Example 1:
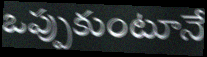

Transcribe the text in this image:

ఒప్పుకుంటూనే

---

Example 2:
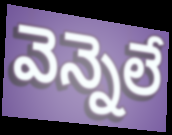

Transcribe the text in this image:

వెన్నెలే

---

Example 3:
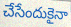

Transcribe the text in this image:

చేసేందుకైనా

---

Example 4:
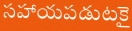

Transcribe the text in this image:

సహాయపడుటకై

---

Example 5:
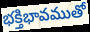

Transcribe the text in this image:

భక్తిభావముతో